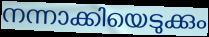
നന്നാക്കിയെടുക്കും